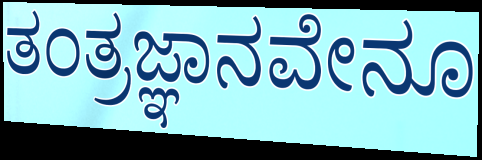
ತಂತ್ರಜ್ಞಾನವೇನೂ